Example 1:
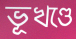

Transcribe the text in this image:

ভূখণ্ডে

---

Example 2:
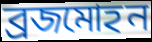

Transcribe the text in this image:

ব্রজমোহন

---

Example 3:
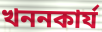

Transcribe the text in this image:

খননকার্য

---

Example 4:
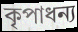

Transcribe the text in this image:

কৃপাধন্য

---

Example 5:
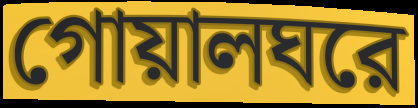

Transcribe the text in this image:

গোয়ালঘরে